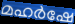
മഹർഷേ